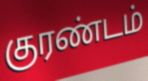
குரண்டம்